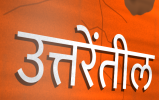
उत्तरेंतील